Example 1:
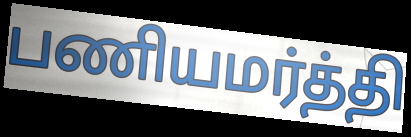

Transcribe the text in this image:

பணியமர்த்தி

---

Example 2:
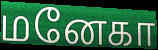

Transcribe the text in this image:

மனேகா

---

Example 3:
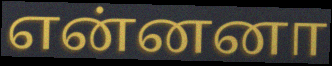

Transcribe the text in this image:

என்னனா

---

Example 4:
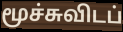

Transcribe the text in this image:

மூச்சுவிடப்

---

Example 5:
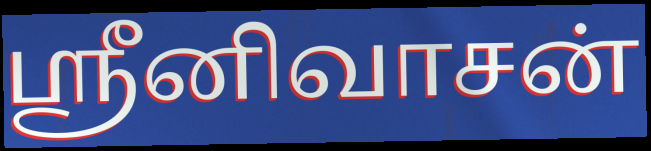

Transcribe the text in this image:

ஸ்ரீனிவாசன்